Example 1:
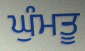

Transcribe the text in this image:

ਘੁੰਮਤੂ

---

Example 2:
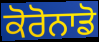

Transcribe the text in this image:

ਕੋਰੋਨਾਡੋ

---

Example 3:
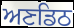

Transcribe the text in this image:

ਅਣਡਿਠ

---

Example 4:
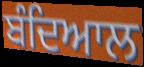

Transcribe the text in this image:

ਬੰਦਿਆਲ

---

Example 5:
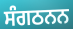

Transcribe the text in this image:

ਸੰਗਠਨਨ